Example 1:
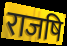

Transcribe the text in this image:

राजषि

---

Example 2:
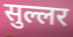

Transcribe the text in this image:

सुल्लर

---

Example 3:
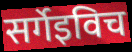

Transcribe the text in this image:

सर्गेइविच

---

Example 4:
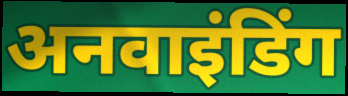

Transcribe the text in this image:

अनवाइंडिंग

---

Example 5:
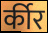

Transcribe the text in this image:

र्कीर